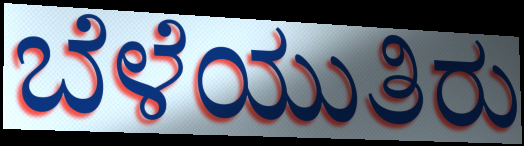
ಬೆಳೆಯುತಿರು